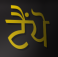
ਟੈਂਪੋ